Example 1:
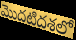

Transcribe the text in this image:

మొదటిదశలో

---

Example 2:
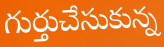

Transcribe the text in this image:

గుర్తుచేసుకున్న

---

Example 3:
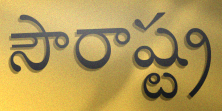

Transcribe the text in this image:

సౌరాష్ట్ర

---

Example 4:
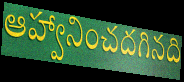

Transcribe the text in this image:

ఆహ్వానించదగినది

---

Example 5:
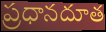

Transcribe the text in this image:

ప్రధానదూత